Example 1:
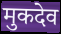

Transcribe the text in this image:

मुकदेव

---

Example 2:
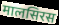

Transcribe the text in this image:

मालसिरस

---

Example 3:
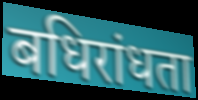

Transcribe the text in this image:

बधिरांधता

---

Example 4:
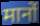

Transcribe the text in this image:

मानों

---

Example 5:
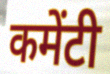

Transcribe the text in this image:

कमेंटी